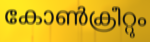
കോൺക്രീറ്റും